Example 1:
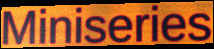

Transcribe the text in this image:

Miniseries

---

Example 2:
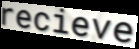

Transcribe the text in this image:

recieve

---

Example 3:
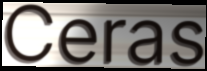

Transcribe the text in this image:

Ceras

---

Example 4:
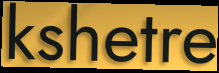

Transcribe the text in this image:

kshetre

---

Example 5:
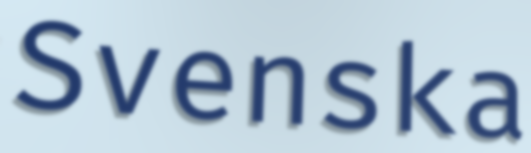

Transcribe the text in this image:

Svenska